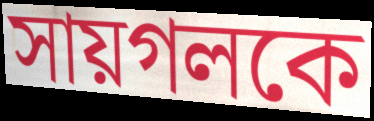
সায়গলকে